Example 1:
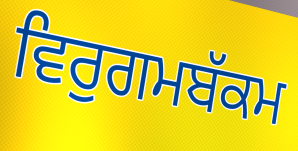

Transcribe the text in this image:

ਵਿਰੁਗਮਬੱਕਮ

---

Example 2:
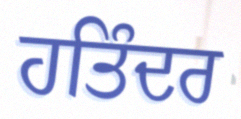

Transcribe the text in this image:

ਹਤਿੰਦਰ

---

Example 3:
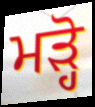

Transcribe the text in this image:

ਮੜ੍ਹੋ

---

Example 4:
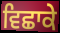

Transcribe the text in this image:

ਵਿਛਾਕੇ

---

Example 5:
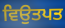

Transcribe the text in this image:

ਵਿਉਤਪਤ